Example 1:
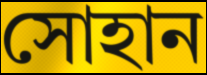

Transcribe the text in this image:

সোহান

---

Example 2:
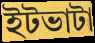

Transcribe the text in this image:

ইটভাটা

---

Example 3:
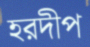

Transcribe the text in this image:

হরদীপ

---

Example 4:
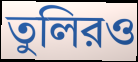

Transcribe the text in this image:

তুলিরও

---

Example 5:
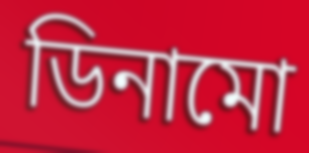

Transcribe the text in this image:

ডিনামো